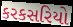
કરકસરિયો